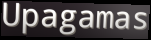
Upagamas